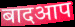
बादआप